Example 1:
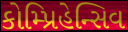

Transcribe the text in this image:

કોમ્પ્રિહેન્સિવ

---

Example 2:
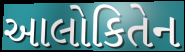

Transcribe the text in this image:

આલોકિતેન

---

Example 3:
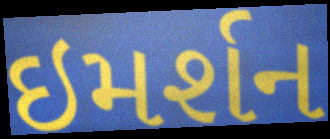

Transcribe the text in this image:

ઇમર્શન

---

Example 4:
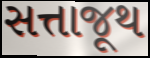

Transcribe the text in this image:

સત્તાજૂથ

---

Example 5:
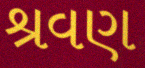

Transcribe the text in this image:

શ્રવણ